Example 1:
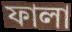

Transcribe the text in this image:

ফালা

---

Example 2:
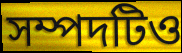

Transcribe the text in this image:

সম্পদটিও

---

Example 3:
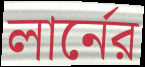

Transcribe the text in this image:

লার্নের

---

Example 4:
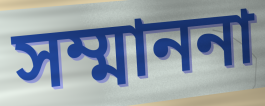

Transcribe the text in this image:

সম্মাননা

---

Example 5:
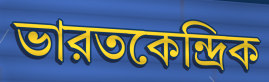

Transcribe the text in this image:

ভারতকেন্দ্রিক